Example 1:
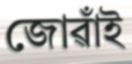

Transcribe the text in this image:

জোৱাঁই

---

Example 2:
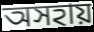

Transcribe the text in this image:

অসহায়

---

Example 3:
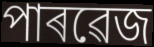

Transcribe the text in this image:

পাৰৱেজ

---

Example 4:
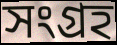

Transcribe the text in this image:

সংগ্ৰহ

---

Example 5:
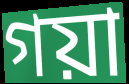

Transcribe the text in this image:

গয়া